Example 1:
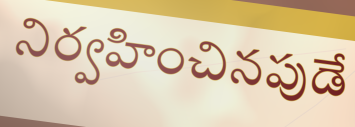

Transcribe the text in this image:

నిర్వహించినపుడే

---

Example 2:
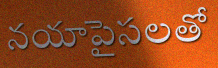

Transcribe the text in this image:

నయాపైసలతో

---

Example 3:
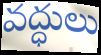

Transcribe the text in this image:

వద్ధులు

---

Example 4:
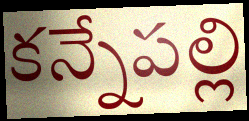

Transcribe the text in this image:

కన్నేపల్లి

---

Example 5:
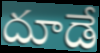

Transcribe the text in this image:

దూడే